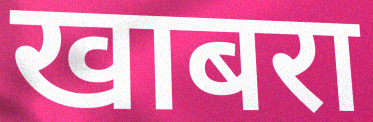
खाबरा